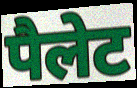
पैलेट